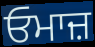
ਓਮਾਜ਼